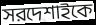
সরদেশাইকে